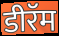
डीरॅम